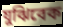
যুঝিবেক